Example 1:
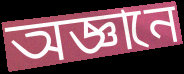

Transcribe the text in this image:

অজ্ঞানে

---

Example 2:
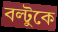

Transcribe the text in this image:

বল্টুকে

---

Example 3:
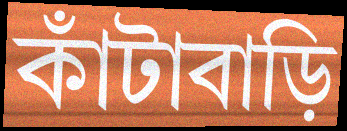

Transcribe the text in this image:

কাঁটাবাড়ি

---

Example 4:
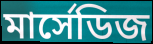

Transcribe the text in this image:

মার্সেডিজ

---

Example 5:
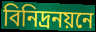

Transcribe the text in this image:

বিনিদ্রনয়নে